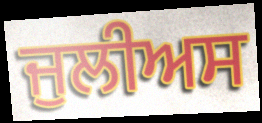
ਜੁਲੀਅਸ